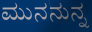
ಮುನನುನ್ನ